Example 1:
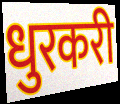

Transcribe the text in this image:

धुरकरी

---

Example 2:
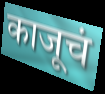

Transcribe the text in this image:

काजूचं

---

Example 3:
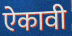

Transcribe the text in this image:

ऐकावी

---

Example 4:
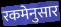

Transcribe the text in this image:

रकमेनुसार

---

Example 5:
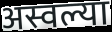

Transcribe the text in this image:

अस्वल्या